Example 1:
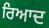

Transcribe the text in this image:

ਰਿਆਦ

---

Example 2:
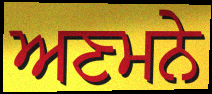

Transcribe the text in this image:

ਅਣਮਨੇ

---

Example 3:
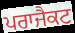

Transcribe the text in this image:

ਪਰਾਜੈਕਟ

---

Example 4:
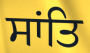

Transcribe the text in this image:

ਸਾਂਤਿ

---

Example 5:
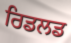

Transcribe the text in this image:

ਰਿਡਲਡ